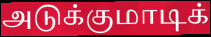
அடுக்குமாடிக்